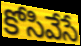
కోసివేసే